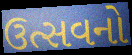
ઉત્સવનો